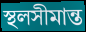
স্থলসীমান্ত